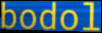
bodol